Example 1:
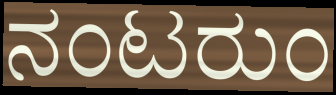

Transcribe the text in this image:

ನಂಟರುಂ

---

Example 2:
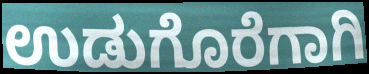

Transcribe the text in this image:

ಉಡುಗೊರೆಗಾಗಿ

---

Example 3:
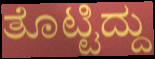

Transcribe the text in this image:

ತೊಟ್ಟಿದ್ದು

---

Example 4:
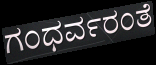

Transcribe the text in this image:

ಗಂಧರ್ವರಂತೆ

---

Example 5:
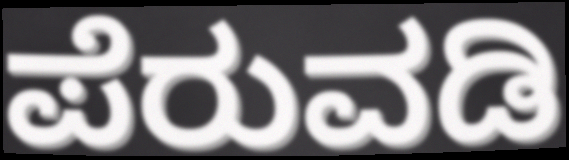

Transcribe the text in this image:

ಪೆರುವಡಿ